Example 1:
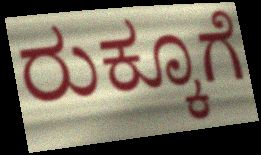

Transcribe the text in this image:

ರುಕ್ಕೂಗೆ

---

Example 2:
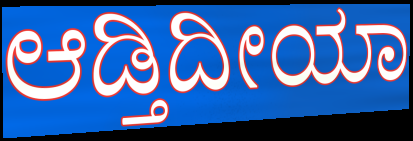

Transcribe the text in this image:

ಆಡ್ತಿದೀಯಾ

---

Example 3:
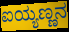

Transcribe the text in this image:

ಐಯ್ಯಣ್ಣನ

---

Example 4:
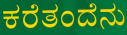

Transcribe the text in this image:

ಕರೆತಂದೆನು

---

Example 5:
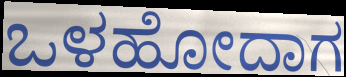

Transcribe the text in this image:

ಒಳಹೋದಾಗ